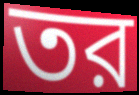
তর